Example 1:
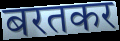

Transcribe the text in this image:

बरतकर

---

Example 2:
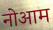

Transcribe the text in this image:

नोआम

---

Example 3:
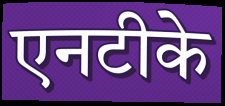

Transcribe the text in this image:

एनटीके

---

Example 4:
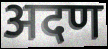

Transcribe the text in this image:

अदण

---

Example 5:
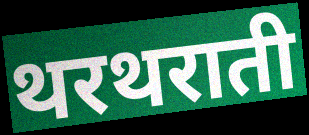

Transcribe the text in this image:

थरथराती